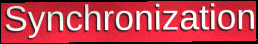
Synchronization